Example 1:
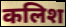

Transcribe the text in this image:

कलिश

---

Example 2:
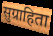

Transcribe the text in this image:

सुग्राहिता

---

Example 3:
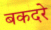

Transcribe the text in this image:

बकदरे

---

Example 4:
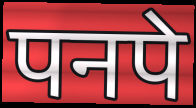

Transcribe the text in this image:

पनपे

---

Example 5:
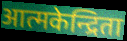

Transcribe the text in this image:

आत्मकेन्द्रिता